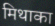
मिथाका